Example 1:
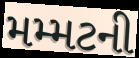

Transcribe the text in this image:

મમ્મટની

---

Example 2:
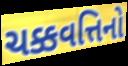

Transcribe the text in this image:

ચક્કવત્તિનો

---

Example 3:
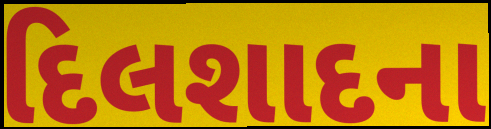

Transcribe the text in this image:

દિલશાદના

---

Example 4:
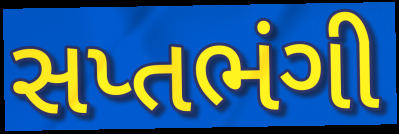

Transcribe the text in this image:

સપ્તભંગી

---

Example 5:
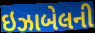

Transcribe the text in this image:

ઇઝાબેલની